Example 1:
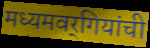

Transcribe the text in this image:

मध्यमवर्गियांची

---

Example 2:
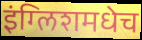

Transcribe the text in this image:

इंग्लिशमधेच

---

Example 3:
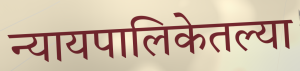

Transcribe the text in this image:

न्यायपालिकेतल्या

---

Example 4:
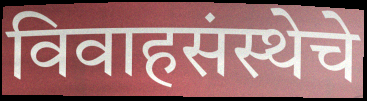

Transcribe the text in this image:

विवाहसंस्थेचे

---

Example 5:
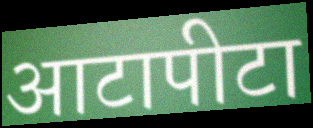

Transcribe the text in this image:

आटापीटा